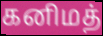
கனிமத்